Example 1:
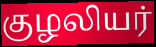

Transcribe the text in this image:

குழலியர்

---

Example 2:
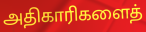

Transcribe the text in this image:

அதிகாரிகளைத்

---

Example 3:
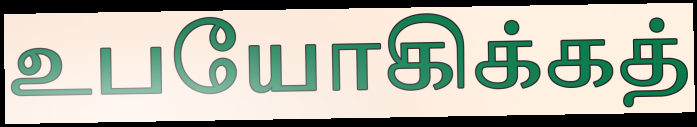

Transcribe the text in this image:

உபயோகிக்கத்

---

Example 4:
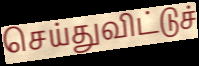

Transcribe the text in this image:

செய்துவிட்டுச்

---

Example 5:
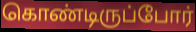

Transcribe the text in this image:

கொண்டிருப்போர்